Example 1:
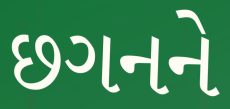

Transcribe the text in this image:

છગનને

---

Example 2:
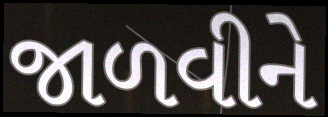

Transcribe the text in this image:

જાળવીને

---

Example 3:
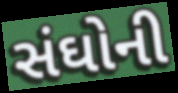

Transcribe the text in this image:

સંઘોની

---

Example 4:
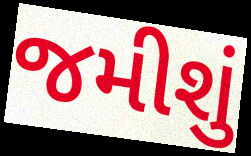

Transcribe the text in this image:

જમીશું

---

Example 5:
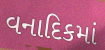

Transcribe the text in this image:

વનાદિકમાં